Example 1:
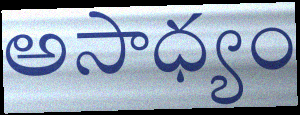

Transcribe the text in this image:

అసాధ్యం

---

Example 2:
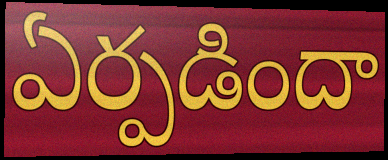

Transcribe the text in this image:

ఏర్పడిందా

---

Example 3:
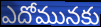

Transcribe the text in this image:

ఎదోమునకు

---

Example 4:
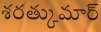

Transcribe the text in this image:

శరత్కుమార్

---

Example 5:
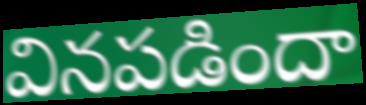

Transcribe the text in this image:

వినపడిందా